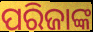
ପରିଜାଙ୍କ